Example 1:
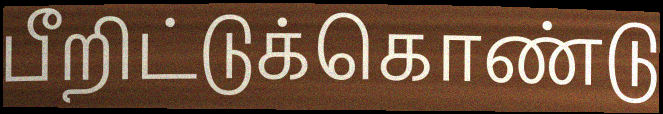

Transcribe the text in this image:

பீறிட்டுக்கொண்டு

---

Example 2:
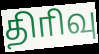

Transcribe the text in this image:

திரிவு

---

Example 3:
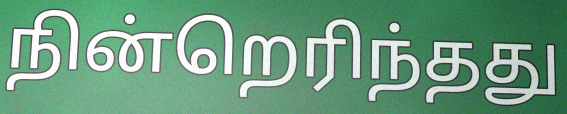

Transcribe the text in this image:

நின்றெரிந்தது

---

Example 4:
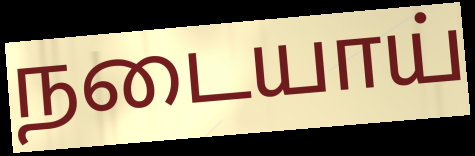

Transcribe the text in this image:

நடையாய்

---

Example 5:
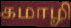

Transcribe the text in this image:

கமாழி